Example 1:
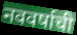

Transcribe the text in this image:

नववर्षाची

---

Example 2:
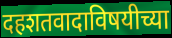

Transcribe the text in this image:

दहशतवादाविषयीच्या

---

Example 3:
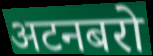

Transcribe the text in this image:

अटनबरो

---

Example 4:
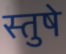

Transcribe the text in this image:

स्तुषे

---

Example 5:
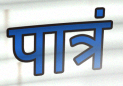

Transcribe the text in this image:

पात्रं